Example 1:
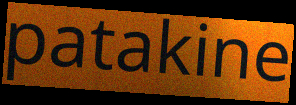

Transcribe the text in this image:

patakine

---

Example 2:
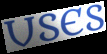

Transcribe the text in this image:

USES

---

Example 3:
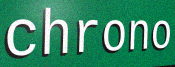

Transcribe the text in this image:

chrono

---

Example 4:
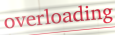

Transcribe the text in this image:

overloading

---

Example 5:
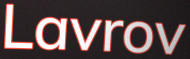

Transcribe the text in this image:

Lavrov